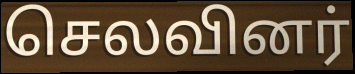
செலவினர்